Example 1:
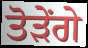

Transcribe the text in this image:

ਤੋੜੇਂਗੇ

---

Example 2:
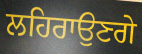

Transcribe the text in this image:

ਲਹਿਰਾਉਣਗੇ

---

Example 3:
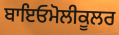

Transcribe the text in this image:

ਬਾਇਓਮੋਲੀਕੂਲਰ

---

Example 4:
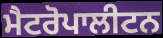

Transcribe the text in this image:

ਮੈਟਰੋਪਾਲੀਟਨ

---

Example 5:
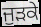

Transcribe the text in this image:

ਜੁੜਕੇ